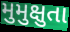
મુમુક્ષુતા